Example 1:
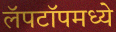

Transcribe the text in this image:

लॅपटॉपमध्ये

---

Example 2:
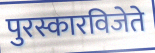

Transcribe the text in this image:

पुरस्कारविजेते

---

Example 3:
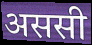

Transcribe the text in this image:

अससी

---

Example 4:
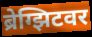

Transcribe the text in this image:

ब्रेग्झिटवर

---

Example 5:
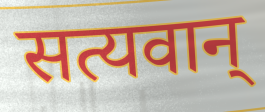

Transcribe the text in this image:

सत्यवान्